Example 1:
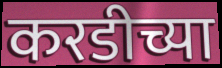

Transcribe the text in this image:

करडीच्या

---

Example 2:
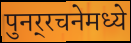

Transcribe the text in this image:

पुनर्रचनेमध्ये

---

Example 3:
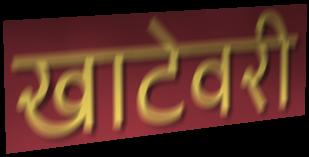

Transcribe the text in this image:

खाटेवरी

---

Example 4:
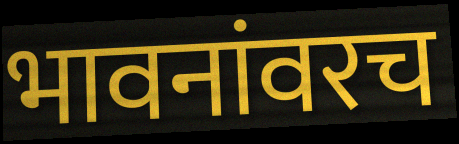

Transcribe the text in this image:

भावनांवरच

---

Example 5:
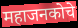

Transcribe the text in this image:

महाजनकोचे